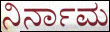
ನಿರ್ನಾಮ